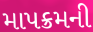
માપક્રમની